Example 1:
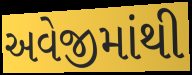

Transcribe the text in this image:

અવેજીમાંથી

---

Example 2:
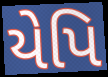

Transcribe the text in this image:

યેપિ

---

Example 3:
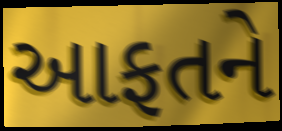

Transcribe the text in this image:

આફતને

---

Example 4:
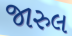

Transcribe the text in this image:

જારુલ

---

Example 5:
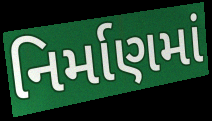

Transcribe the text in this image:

નિર્માણમાં